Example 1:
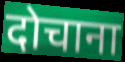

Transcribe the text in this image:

दोचाना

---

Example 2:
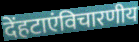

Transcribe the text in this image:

देंहटाएंविचारणीय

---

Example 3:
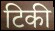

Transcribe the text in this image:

टिकी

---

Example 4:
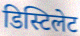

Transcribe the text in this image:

डिस्टिलेट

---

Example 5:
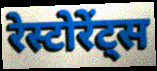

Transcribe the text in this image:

रेस्टोरेंट्स